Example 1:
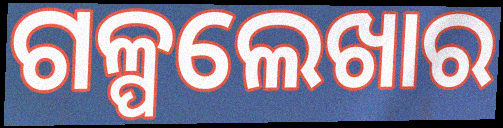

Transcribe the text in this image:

ଗଳ୍ପଲେଖାର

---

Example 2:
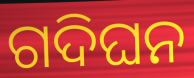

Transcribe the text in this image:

ଗଦିଘନ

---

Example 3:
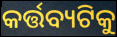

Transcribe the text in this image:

କର୍ତ୍ତବ୍ୟଟିକୁ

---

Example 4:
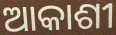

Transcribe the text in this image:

ଆକାଶୀ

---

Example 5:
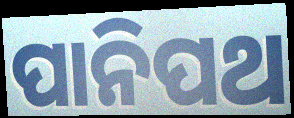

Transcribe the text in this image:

ପାନିପଥ